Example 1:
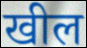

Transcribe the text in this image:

खील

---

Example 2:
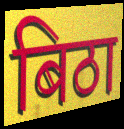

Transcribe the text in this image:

बिठा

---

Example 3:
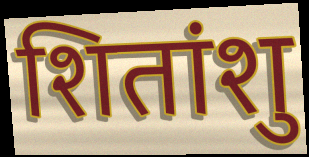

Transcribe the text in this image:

शितांशु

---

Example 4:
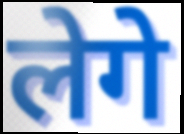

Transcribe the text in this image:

लेगे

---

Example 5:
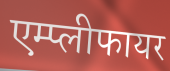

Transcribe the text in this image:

एम्प्लीफायर